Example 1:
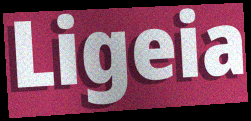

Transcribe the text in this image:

Ligeia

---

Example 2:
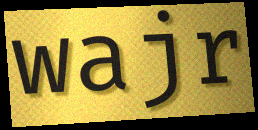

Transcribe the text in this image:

wajr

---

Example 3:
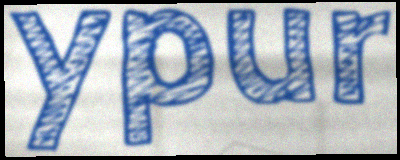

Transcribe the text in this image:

ypur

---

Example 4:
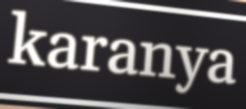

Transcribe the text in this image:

karanya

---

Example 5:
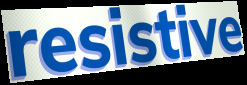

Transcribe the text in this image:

resistive